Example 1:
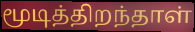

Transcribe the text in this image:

மூடித்திறந்தாள்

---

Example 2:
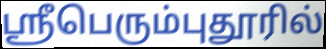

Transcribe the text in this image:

ஸ்ரீபெரும்புதூரில்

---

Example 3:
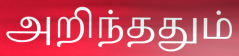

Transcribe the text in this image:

அறிந்ததும்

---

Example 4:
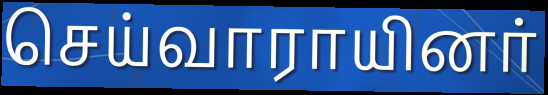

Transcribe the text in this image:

செய்வாராயினர்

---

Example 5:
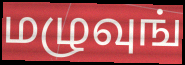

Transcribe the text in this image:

மழுவுங்